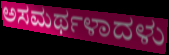
ಅಸಮರ್ಥಳಾದಳು